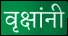
वृक्षांनी